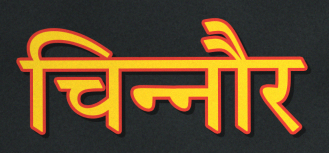
चिन्‍नौर